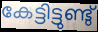
കേട്ടിട്ടുണ്ടു്